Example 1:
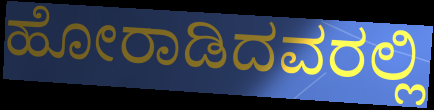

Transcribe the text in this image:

ಹೋರಾಡಿದವರಲ್ಲಿ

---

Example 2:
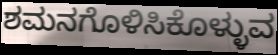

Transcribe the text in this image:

ಶಮನಗೊಳಿಸಿಕೊಳ್ಳುವ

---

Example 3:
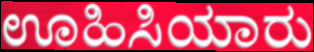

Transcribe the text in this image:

ಊಹಿಸಿಯಾರು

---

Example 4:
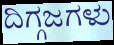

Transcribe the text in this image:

ದಿಗ್ಗಜಗಳು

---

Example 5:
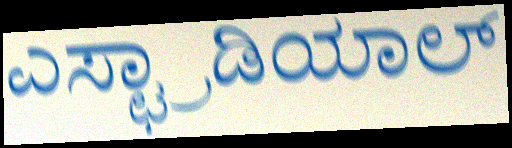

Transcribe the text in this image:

ಎಸ್ಟ್ರಾಡಿಯಾಲ್